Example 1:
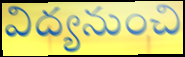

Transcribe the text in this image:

విద్యనుంచి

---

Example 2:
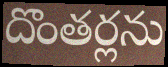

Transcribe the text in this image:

దొంతర్లను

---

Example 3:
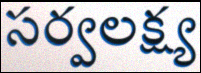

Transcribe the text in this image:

సర్వలక్ష్య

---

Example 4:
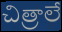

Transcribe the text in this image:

చిత్రాలే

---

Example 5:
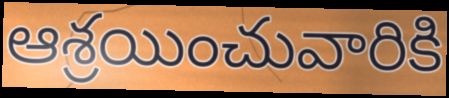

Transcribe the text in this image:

ఆశ్రయించువారికి